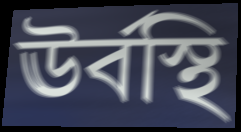
ঊর্বস্থি